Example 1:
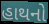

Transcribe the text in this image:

હાથનો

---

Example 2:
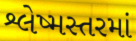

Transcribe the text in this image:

શ્લેષ્મસ્તરમાં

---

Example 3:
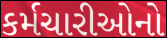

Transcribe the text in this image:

કર્મચારીઓનો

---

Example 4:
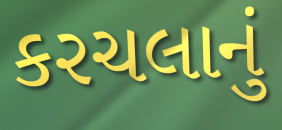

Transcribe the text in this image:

કરચલાનું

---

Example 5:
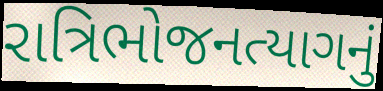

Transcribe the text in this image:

રાત્રિભોજનત્યાગનું